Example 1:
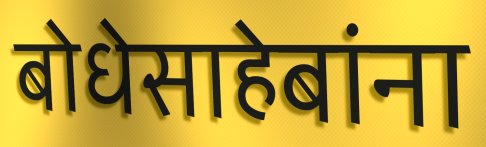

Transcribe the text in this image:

बोधेसाहेबांना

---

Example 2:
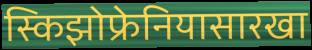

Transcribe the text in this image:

स्किझोफ्रेनियासारखा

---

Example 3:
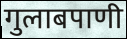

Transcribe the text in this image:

गुलाबपाणी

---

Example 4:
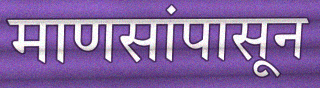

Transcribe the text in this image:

माणसांपासून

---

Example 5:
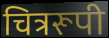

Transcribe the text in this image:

चित्ररूपी